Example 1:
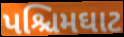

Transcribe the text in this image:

પશ્ચિમઘાટ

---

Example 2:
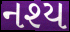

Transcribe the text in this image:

નશ્ય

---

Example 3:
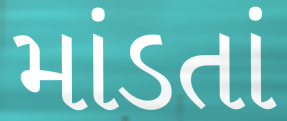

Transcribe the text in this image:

માંડતાં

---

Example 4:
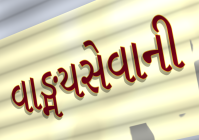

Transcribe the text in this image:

વાઙ્મયસેવાની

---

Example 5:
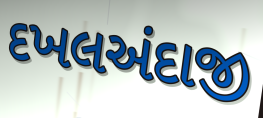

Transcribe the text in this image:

દખલઅંદાજી